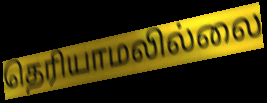
தெரியாமலில்லை